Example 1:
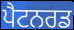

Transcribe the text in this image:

ਪੈਟਨਰਡ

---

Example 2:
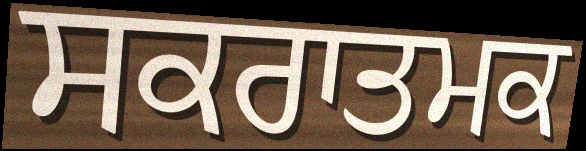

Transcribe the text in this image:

ਸਕਰਾਤਮਕ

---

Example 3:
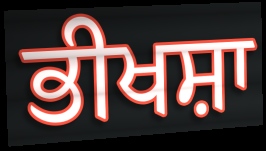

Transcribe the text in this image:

ਭੀਖਸ਼ਾ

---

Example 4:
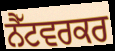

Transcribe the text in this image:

ਨੈੱਟਵਰਕਰ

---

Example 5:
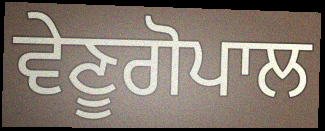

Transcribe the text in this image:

ਵੇਣੂਗੋਪਾਲ